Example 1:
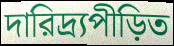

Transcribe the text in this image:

দারিদ্র্যপীড়িত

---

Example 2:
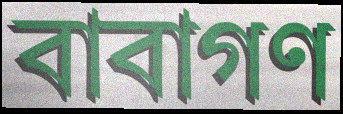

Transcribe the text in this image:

বাবাগণ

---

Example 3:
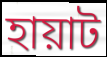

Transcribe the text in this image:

হায়াট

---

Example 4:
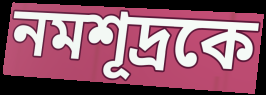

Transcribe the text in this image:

নমশূদ্রকে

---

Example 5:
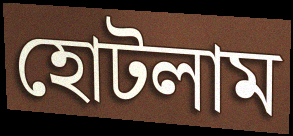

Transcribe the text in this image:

হোটলাম